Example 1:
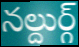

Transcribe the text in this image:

నల్దుర్గ్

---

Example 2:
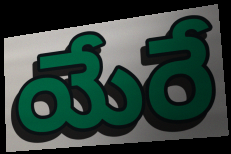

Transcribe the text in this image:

యేరే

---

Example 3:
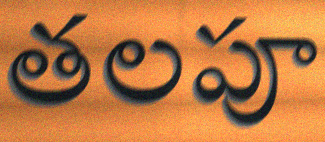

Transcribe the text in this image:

తలపూ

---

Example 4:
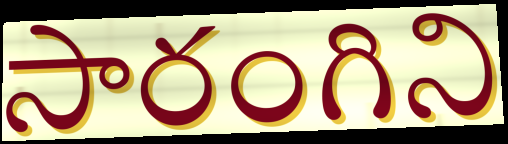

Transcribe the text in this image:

సారంగిని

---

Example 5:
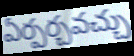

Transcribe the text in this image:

ఏర్పర్చవచ్చు